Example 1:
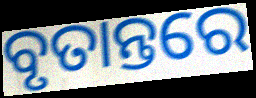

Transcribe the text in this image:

ବୃତାନ୍ତରେ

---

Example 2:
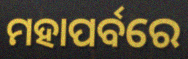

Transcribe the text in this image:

ମହାପର୍ବରେ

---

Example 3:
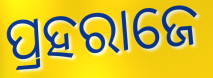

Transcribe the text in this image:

ପ୍ରହରାଜେ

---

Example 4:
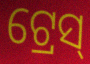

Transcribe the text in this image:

ଟ୍ରେସ୍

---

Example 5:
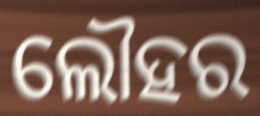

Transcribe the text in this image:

ଲୌହର